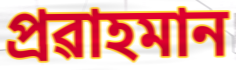
প্ৰৱাহমান